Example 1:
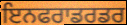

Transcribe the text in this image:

ਇਨਫਰਾਡਰਡਰ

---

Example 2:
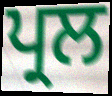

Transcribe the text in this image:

ਪ੍ਰਲ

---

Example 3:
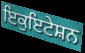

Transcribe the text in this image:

ਇਕੁਇਟੇਸ਼ਨ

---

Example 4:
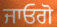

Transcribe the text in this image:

ਜਾਓਗੋ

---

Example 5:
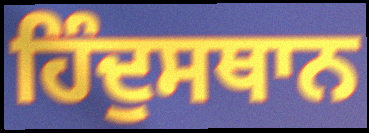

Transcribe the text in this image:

ਹਿੰਦੁਸਥਾਨ